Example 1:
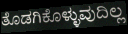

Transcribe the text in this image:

ತೊಡಗಿಕೊಳ್ಳುವುದಿಲ್ಲ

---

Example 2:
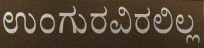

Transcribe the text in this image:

ಉಂಗುರವಿರಲಿಲ್ಲ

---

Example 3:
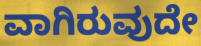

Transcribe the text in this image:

ವಾಗಿರುವುದೇ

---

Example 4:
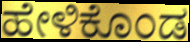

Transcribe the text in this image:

ಹೇಳಿಕೊಂಡ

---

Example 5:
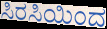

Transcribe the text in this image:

ಸಿರಸಿಯಿಂದ